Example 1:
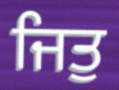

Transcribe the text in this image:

ਜਿਤੁ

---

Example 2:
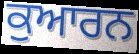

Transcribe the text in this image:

ਕੁਆਰਨ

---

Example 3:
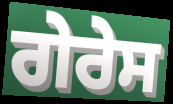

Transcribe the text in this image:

ਗੇਰੇਸ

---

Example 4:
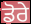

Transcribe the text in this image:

ਡੋਰੇ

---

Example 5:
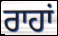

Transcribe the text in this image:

ਰਾਹਾਂ